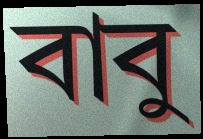
বাবু